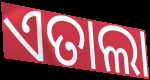
ଏତାଲା